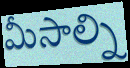
మీసాల్ని